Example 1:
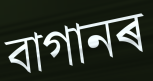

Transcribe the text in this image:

বাগানৰ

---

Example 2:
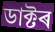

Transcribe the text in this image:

ডাক্টৰ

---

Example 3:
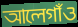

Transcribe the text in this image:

আলেগাঁও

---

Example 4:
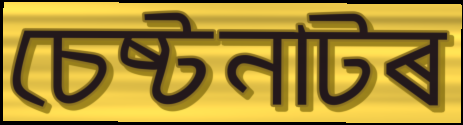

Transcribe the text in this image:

চেষ্টনাটৰ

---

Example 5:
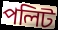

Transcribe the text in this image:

পলিট